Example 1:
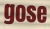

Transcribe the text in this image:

gose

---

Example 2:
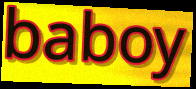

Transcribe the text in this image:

baboy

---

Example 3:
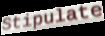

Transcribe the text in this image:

Stipulate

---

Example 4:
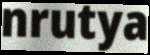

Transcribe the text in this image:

nrutya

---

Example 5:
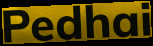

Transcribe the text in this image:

Pedhai